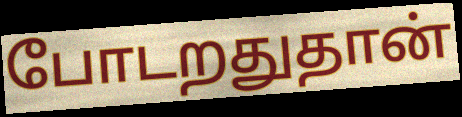
போடறதுதான்